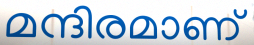
മന്ദിരമാണ്